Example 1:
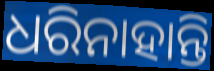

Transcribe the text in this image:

ଧରିନାହାନ୍ତି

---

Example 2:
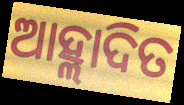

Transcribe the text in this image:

ଆହ୍ଲାଦିତ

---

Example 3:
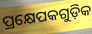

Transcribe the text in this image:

ପ୍ରକ୍ଷେପକଗୁଡ଼ିକ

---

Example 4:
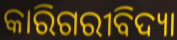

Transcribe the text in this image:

କାରିଗରୀବିଦ୍ୟା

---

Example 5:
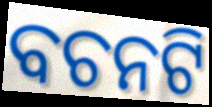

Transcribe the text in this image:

ବଚନଟି